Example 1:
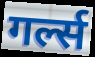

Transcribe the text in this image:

गर्ल्स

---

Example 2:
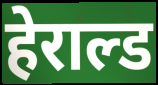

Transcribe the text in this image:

हेराल्ड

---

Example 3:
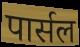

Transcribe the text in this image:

पार्सल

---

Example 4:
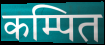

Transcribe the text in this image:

कम्पित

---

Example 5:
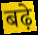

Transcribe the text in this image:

बढ़े